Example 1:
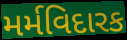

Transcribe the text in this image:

મર્મવિદારક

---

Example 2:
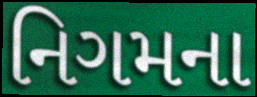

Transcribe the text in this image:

નિગમના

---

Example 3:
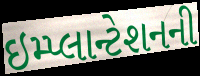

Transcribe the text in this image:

ઇમ્પ્લાન્ટેશનની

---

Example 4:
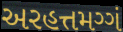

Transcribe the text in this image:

અરહત્તમગ્ગં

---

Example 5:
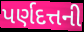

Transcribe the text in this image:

પર્ણદત્તની